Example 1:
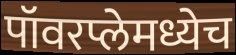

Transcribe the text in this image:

पॉवरप्लेमध्येच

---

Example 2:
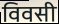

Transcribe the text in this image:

विवसी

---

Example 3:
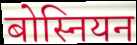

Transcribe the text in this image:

बोस्नियन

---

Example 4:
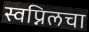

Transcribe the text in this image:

स्वप्निलचा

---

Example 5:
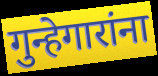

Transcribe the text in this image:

गुन्हेगारांना